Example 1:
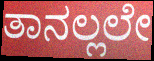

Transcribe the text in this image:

ತಾನಲ್ಲಲೇ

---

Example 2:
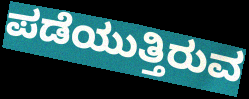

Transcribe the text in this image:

ಪಡೆಯುತ್ತಿರುವ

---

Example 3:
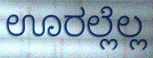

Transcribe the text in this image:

ಊರಲ್ಲೆಲ್ಲ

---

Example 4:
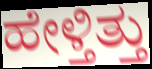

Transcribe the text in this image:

ಹೇಳ್ತಿತ್ತು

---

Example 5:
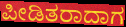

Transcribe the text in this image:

ಪೀಡಿತರಾದಾಗ